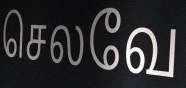
செலவே